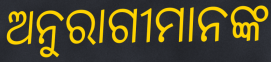
ଅନୁରାଗୀମାନଙ୍କ